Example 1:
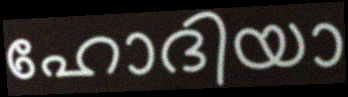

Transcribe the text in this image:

ഹോദിയാ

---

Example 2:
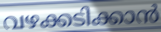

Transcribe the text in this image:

വഴക്കടിക്കാൻ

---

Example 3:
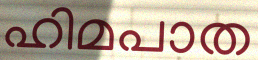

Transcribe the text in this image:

ഹിമപാത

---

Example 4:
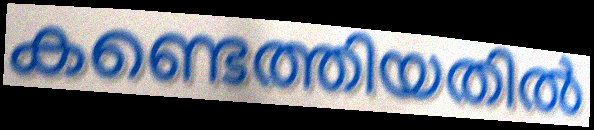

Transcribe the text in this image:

കണ്ടെത്തിയതിൽ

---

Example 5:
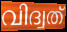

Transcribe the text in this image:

വിദ്വത്